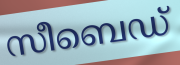
സീബെഡ്